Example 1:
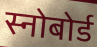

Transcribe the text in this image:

स्नोबोर्ड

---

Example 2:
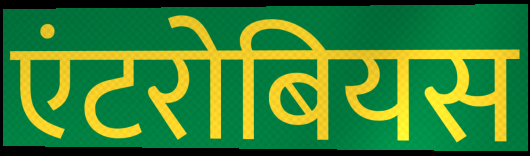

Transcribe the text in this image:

एंटरोबियस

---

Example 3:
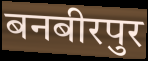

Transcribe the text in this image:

बनबीरपुर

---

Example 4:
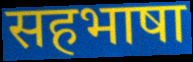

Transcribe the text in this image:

सहभाषा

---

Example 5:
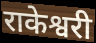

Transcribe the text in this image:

राकेश्वरी